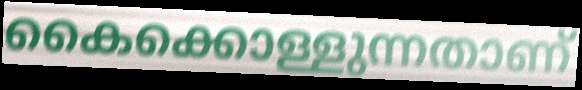
കൈക്കൊള്ളുന്നതാണ്